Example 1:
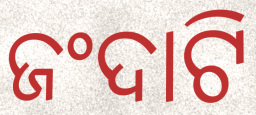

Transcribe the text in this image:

ଜଂଦାଟି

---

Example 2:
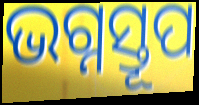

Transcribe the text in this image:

ଭଗ୍ନସ୍ତୂପ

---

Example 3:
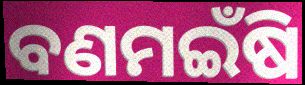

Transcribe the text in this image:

ବଣମଇଁଷି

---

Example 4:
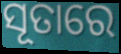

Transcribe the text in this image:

ସୂତାରେ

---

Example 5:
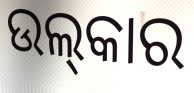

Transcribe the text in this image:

ଉଲ୍‍କାର